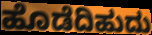
ಹೊಡೆದಿಹುದು